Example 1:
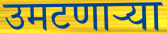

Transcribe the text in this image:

उमटणाऱ्या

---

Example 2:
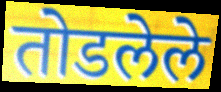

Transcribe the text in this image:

तोडलेले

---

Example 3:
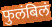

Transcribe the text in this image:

फुलंबिलं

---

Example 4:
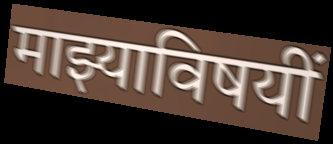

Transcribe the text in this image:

माझ्याविषयीं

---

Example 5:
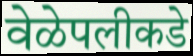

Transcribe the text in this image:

वेळेपलीकडे